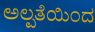
ಅಲ್ಪತೆಯಿಂದ